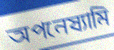
অপনেষ্যামি